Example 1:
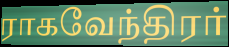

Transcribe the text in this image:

ராகவேந்திரர்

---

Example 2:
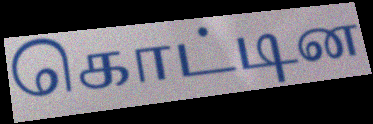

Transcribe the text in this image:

கொட்டின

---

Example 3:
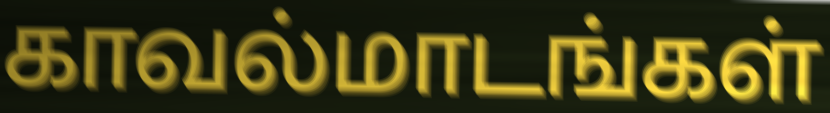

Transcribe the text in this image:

காவல்மாடங்கள்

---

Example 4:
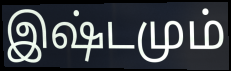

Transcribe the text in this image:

இஷ்டமும்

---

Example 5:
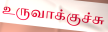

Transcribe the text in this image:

உருவாக்குச்சு